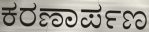
ಕರಣಾರ್ಪಣ